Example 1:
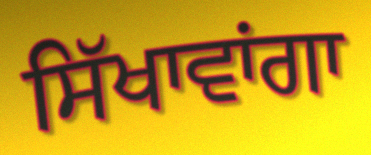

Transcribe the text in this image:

ਸਿੱਖਾਵਾਂਗਾ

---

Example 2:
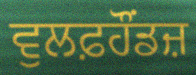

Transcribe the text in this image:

ਵੁਲਫ਼ਹੌਂਡਜ਼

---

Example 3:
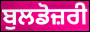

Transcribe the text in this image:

ਬੁਲਡੋਜ਼ਰੀ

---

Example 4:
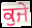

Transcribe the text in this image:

ਕੁਜੇ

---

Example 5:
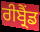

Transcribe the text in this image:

ਰੀਬ੍ਰੈਂਡ